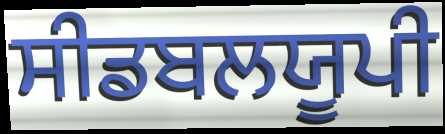
ਸੀਡਬਲਯੂਪੀ